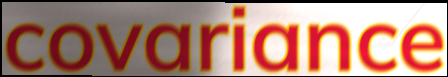
covariance